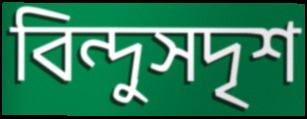
বিন্দুসদৃশ